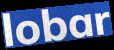
lobar